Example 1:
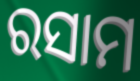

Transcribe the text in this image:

ରସାମ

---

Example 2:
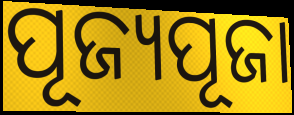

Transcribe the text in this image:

ପୂଜ୍ୟପୂଜା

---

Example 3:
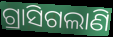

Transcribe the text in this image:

ଗ୍ରାସିଗଲାଣି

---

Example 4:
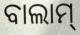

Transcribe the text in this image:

ବାଲାମ୍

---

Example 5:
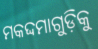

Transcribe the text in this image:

ମକଦ୍ଦମାଗୁଡ଼ିକୁ